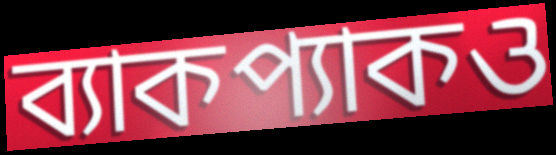
ব্যাকপ্যাকও